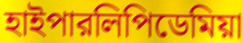
হাইপারলিপিডেমিয়া